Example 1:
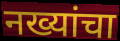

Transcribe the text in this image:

नख्यांचा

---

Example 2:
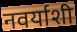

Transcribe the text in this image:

नवर्याशी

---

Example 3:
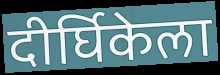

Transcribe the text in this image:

दीर्घिकेला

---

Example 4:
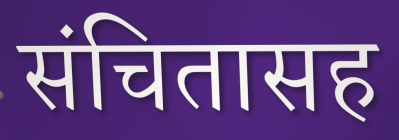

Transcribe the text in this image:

संचितासह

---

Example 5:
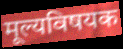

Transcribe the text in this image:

मूल्यविषयक